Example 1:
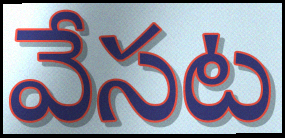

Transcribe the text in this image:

వేసట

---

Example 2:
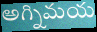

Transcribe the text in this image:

అగ్నిమయ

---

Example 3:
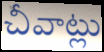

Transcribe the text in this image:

చీవాట్లు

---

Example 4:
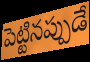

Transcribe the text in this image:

పెట్టినప్పుడే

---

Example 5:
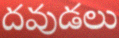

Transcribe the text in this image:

దవుడలు